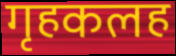
गृहकलह